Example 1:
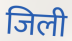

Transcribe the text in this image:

जिली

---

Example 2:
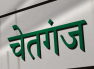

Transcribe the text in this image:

चेतगंज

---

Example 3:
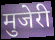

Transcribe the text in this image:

मुजेरी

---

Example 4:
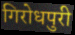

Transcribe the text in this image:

गिरोधपुरी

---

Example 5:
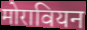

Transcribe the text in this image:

मोरावियन